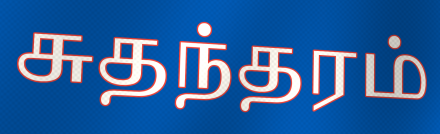
சுதந்தரம்